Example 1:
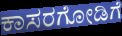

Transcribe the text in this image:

ಕಾಸರಗೋಡಿಗೆ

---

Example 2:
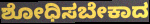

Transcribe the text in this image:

ಶೋಧಿಸಬೇಕಾದ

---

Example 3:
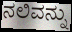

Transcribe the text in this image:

ನಲಿವನ್ನು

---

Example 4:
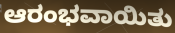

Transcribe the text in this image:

ಆರಂಭವಾಯಿತು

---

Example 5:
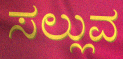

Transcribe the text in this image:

ಸಲ್ಲುವ